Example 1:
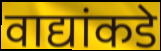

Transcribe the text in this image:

वाद्यांकडे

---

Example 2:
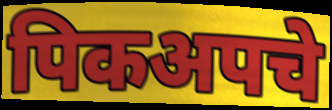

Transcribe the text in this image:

पिकअपचे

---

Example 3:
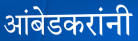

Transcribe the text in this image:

आंबेडकरांनी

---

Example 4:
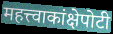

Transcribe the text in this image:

महत्त्वाकांक्षेपोटी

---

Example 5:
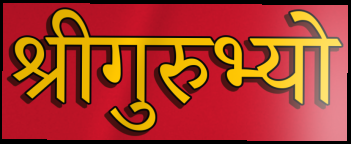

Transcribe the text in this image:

श्रीगुरुभ्यो